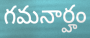
గమనార్హం